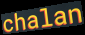
chalan